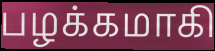
பழக்கமாகி